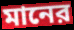
মানের